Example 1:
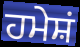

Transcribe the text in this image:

ਹਮੇਸ਼ਂ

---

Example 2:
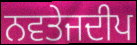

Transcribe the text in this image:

ਨਵਤੇਜਦੀਪ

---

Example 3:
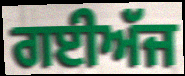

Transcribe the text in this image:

ਗਈਅੱਜ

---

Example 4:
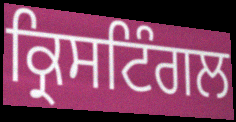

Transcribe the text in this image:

ਕ੍ਰਿਸਟਿੰਗਲ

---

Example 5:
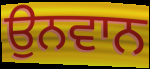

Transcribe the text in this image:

ਉਨਵਾਨ